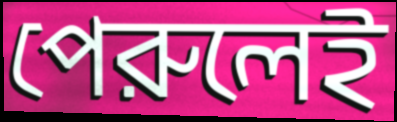
পেরুলেই